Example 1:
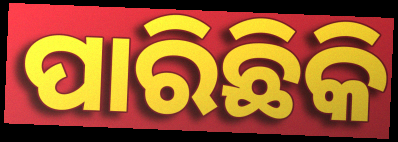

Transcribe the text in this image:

ପାରିଛିକି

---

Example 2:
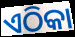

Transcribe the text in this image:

ଏଠିକା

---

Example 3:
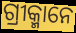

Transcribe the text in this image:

ଗ୍ରୀକ୍ମାନେ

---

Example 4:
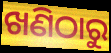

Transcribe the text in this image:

ଖଣିଠାରୁ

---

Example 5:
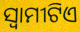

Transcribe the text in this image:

ସ୍ୱାମୀଟିଏ